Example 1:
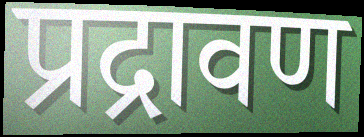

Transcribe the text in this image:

प्रद्रावण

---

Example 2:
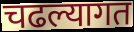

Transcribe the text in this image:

चढल्यागत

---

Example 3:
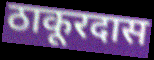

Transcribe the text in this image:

ठाकूरदास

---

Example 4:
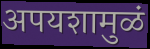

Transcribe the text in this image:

अपयशामुळं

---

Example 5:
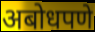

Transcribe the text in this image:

अबोधपणे